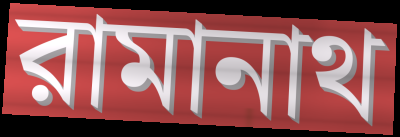
রামানাথ